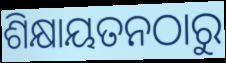
ଶିକ୍ଷାୟତନଠାରୁ